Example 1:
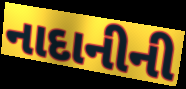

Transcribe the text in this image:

નાદાનીની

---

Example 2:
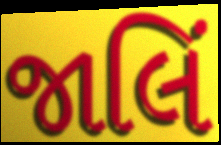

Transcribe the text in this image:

જાલિં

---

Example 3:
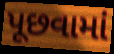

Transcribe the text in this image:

પૂછવામાં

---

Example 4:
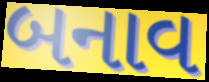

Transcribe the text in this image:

બનાવ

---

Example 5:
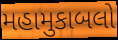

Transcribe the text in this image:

મહામુકાબલો